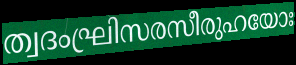
ത്വദംഘ്രിസരസീരുഹയോഃ